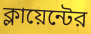
ক্লায়েন্টের